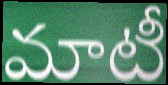
మాటీ